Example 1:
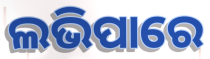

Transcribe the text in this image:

ଲଭିପାରେ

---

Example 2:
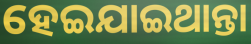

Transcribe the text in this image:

ହେଇଯାଇଥାନ୍ତା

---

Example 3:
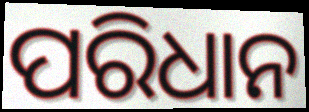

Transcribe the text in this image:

ପରିଧାନ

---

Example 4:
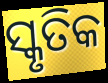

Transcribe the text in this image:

ସ୍କୃତିକ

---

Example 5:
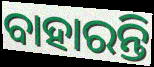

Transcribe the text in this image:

ବାହାରନ୍ତି